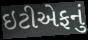
ઇટીએફનું